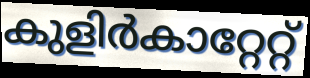
കുളിർകാറ്റേറ്റ്